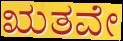
ಋತವೇ